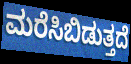
ಮರೆಸಿಬಿಡುತ್ತದೆ